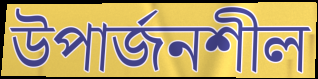
উপার্জনশীল